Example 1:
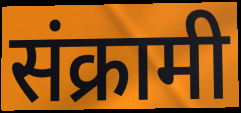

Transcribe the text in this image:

संक्रामी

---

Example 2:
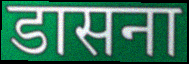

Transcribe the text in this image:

डासना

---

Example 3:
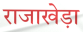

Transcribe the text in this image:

राजाखेड़ा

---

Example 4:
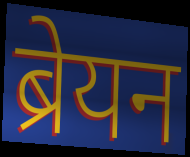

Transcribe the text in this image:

ब्रेयन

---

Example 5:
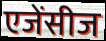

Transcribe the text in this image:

एजेंसीज